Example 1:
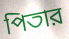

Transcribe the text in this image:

পিতার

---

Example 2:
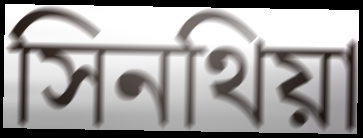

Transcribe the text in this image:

সিনথিয়া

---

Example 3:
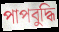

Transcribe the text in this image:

পাপবুদ্ধি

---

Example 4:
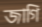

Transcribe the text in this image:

জাগি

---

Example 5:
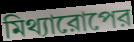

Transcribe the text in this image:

মিথ্যারোপের